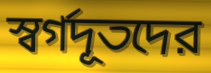
স্বর্গদূতদের